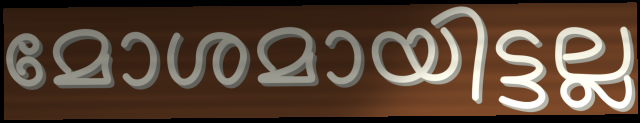
മോശമായിട്ടല്ല